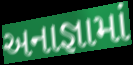
અનાજ્ઞામાં